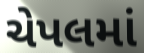
ચેપલમાં